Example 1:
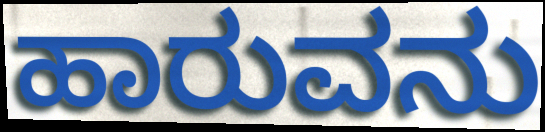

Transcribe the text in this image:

ಹಾರುವನು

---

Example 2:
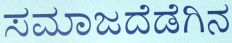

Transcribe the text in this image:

ಸಮಾಜದೆಡೆಗಿನ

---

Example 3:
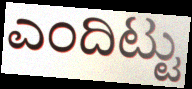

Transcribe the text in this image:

ಎಂದಿಟ್ಟು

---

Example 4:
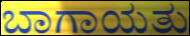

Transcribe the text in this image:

ಬಾಗಾಯತು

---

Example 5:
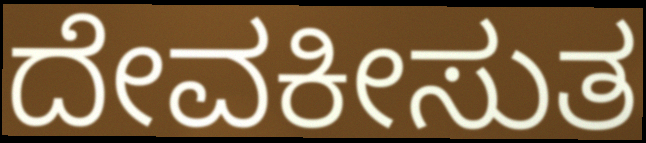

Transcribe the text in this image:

ದೇವಕೀಸುತ